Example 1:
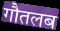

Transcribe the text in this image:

गौतलब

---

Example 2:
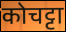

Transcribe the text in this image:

कोचट्टा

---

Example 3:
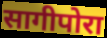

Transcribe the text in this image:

सागीपोरा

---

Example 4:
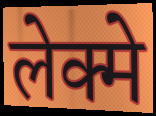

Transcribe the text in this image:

लेक्मे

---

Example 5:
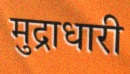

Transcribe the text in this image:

मुद्राधारी